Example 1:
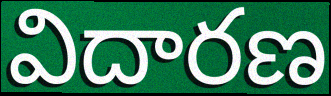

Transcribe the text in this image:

విదారణ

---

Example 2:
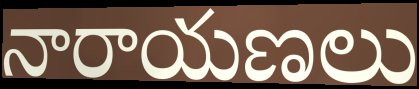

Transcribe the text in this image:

నారాయణలు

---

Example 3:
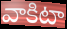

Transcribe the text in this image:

వాకిటా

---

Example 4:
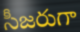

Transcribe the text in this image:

సీజరుగా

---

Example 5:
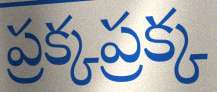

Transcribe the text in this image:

ప్రక్కప్రక్క